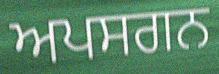
ਅਪਸਗਨ